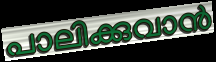
പാലിക്കുവാൻ